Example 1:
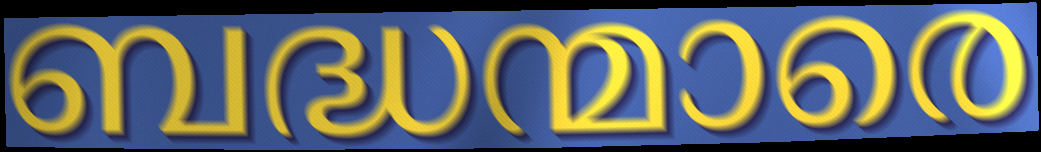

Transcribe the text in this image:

ബദ്ധന്മാരെ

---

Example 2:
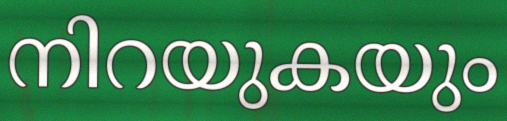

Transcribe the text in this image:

നിറയുകയും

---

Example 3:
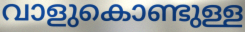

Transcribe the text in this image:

വാളുകൊണ്ടുള്ള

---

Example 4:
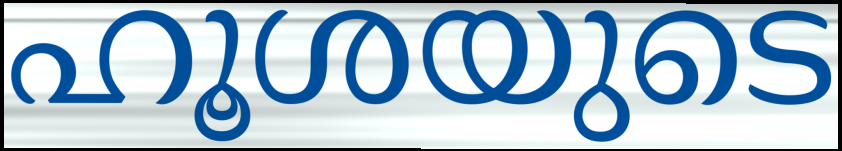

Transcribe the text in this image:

ഹൂശയുടെ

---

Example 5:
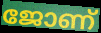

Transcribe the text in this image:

ജോണ്